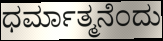
ಧರ್ಮಾತ್ಮನೆಂದು